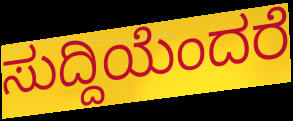
ಸುದ್ದಿಯೆಂದರೆ